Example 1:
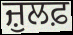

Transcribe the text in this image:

ਜ਼ੁਲਫ਼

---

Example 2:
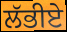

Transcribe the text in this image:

ਲੱਭੀਏ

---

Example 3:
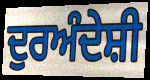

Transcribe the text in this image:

ਦੁਰਅੰਦੇਸ਼ੀ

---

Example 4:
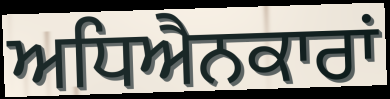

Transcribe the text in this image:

ਅਧਿਐਨਕਾਰਾਂ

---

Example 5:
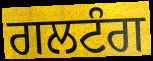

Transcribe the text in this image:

ਗਲਟੰਗ